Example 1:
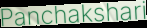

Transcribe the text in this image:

Panchakshari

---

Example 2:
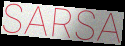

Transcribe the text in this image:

SARSA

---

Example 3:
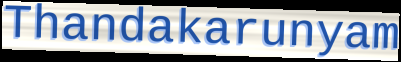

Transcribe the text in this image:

Thandakarunyam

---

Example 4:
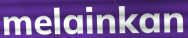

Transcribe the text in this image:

melainkan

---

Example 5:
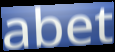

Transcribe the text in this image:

abet